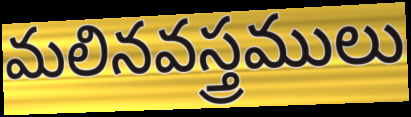
మలినవస్త్రములు